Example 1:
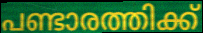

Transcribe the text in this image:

പണ്ടാരത്തിക്ക്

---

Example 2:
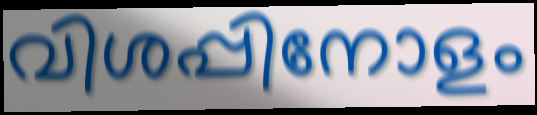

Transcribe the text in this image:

വിശപ്പിനോളം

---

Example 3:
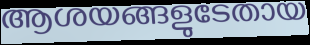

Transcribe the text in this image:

ആശയങ്ങളുടേതായ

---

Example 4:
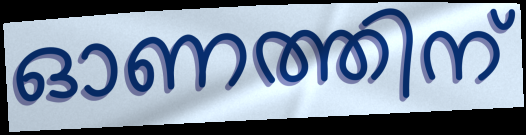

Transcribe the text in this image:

ഓണത്തിന്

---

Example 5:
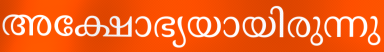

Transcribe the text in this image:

അക്ഷോഭ്യയായിരുന്നു